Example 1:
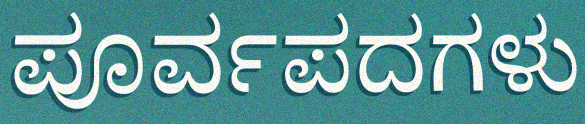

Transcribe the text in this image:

ಪೂರ್ವಪದಗಳು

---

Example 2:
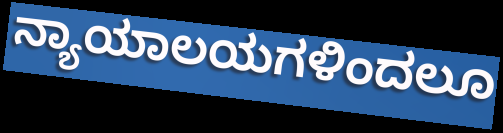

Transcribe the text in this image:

ನ್ಯಾಯಾಲಯಗಳಿಂದಲೂ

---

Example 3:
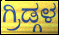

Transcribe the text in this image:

ಗ್ರಿಡ್ಗಳ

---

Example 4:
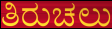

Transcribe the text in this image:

ತಿರುಚಲು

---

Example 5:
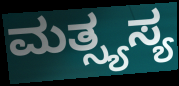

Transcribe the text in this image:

ಮತ್ಸ್ಯಸ್ಯ